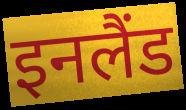
इनलैंड